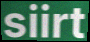
siirt